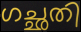
ഗച്ഛതി